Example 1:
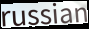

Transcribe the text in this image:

russian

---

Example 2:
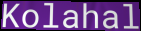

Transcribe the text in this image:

Kolahal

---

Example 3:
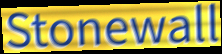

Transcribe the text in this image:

Stonewall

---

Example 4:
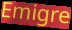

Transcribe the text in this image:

Emigre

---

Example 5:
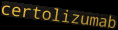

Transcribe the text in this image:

certolizumab